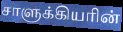
சாளுக்கியரின்